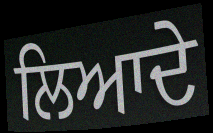
ਲਿਆਦੇ